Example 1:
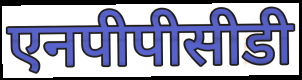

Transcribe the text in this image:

एनपीपीसीडी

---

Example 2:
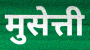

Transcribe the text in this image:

मुसेत्ती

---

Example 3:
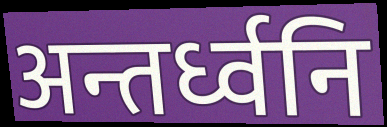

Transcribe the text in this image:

अन्तर्ध्वनि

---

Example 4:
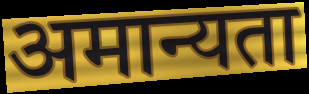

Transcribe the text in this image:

अमान्यता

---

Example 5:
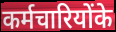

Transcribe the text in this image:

कर्मचारियोंके